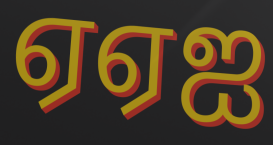
ஏஏஐ